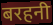
बरहनी